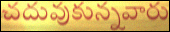
చదువుకున్నవారు